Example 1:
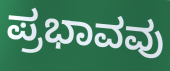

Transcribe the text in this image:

ಪ್ರಭಾವವು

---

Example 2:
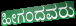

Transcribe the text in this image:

ಹೀಗಂದವರು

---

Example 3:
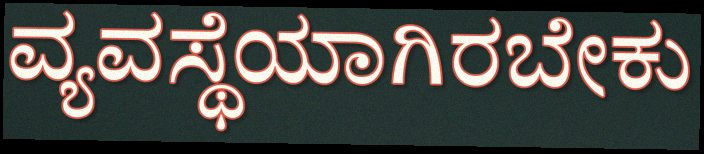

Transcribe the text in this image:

ವ್ಯವಸ್ಥೆಯಾಗಿರಬೇಕು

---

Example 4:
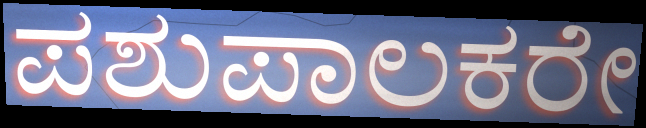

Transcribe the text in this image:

ಪಶುಪಾಲಕರೇ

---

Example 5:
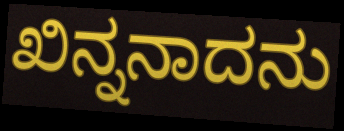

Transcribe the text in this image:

ಖಿನ್ನನಾದನು